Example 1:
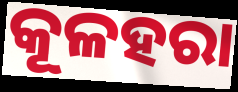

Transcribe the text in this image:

କୂଳହରା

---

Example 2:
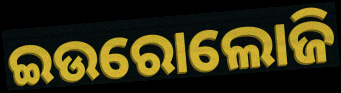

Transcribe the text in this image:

ଇଉରୋଲୋଜି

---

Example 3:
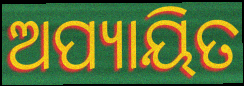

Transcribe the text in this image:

ଅପ୍ୟାୟିତ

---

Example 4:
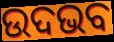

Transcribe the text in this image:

ଉଦଭବ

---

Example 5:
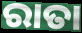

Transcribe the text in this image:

ରାତା